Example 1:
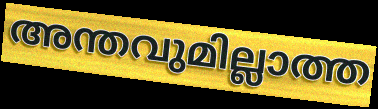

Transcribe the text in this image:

അന്തവുമില്ലാത്ത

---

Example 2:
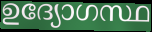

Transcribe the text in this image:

ഉദ്യോഗസ്ഥ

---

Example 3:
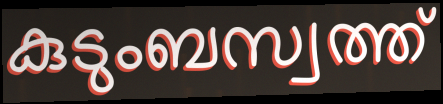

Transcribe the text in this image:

കുടുംബസ്വത്ത്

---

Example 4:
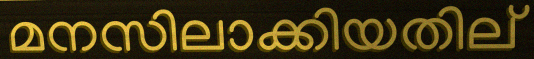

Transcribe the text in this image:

മനസിലാക്കിയതില്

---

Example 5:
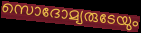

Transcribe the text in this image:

സൊദോമ്യരുടേയും